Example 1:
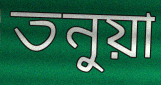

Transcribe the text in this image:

তনুয়া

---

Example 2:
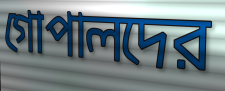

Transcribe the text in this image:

গোপালদের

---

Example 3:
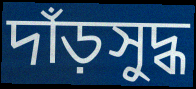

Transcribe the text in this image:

দাঁড়সুদ্ধ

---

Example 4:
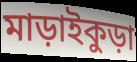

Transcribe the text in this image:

মাড়াইকুড়া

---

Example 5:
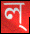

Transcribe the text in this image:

ল্